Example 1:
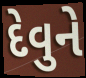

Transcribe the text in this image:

દેવુને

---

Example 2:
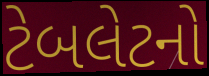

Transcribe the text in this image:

ટેબલેટનો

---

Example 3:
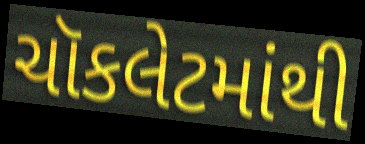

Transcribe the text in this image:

ચૉકલેટમાંથી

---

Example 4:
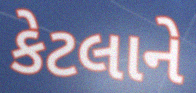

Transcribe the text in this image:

કેટલાને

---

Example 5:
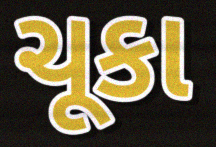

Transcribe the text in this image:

ચૂકા